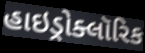
હાઇડ્રોક્લૉરિક